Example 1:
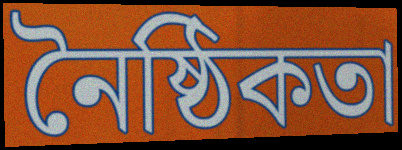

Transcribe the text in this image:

নৈষ্ঠিকতা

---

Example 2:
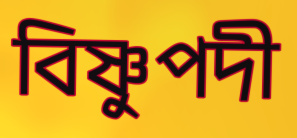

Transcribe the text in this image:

বিষ্ণুপদী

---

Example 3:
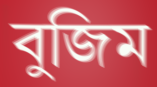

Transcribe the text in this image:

বুজিম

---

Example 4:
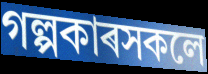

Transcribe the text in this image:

গল্পকাৰসকলে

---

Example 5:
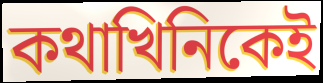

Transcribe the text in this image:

কথাখিনিকেই